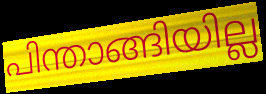
പിന്താങ്ങിയില്ല